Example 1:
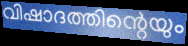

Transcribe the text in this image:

വിഷാദത്തിന്റെയും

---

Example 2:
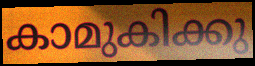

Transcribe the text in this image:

കാമുകിക്കു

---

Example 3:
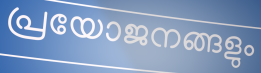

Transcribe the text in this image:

പ്രയോജനങ്ങളും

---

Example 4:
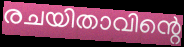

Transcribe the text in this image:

രചയിതാവിന്റെ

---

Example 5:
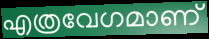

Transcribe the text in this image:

എത്രവേഗമാണ്